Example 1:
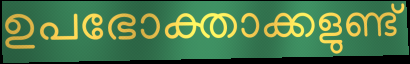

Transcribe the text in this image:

ഉപഭോക്താക്കളുണ്ട്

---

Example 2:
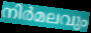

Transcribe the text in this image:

നിർമലവും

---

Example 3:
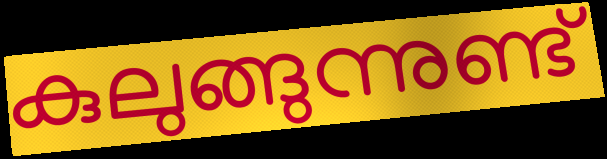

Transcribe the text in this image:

കുലുങ്ങുന്നുണ്ട്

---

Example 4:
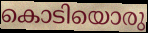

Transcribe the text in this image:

കൊടിയൊരു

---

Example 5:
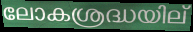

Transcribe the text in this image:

ലോകശ്രദ്ധയില്